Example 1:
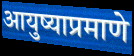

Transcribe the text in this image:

आयुष्याप्रमाणे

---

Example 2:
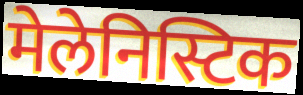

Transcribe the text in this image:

मेलेनिस्टिक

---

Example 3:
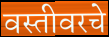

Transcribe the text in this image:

वस्तीवरचे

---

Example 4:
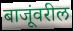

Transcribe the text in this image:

बाजूंवरील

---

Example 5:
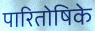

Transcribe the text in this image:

पारितोषिके